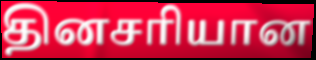
தினசரியான